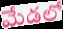
మేడలో